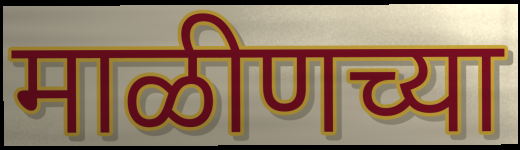
माळीणच्या